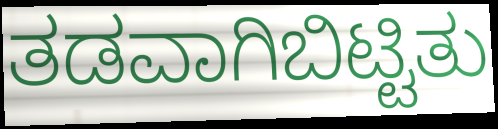
ತಡವಾಗಿಬಿಟ್ಟಿತು